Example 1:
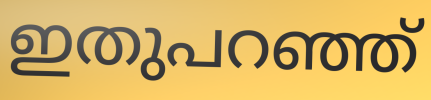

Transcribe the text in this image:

ഇതുപറഞ്ഞ്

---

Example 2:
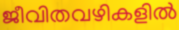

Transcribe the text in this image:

ജീവിതവഴികളിൽ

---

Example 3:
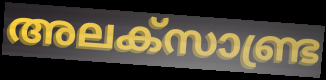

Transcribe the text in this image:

അലക്സാണ്ട്ര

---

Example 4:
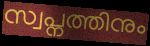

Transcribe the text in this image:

സ്വപ്നത്തിനും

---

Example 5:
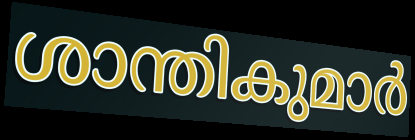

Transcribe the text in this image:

ശാന്തികുമാർ